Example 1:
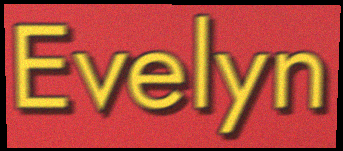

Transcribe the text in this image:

Evelyn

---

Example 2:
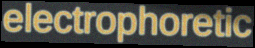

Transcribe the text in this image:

electrophoretic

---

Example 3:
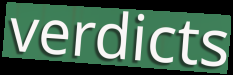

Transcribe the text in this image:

verdicts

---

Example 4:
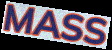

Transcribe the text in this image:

MASS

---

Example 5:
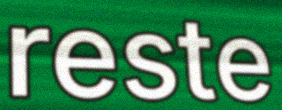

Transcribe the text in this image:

reste